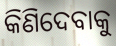
କିଣିଦେବାକୁ